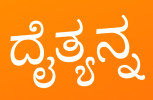
ದೈತ್ಯನ್ನ